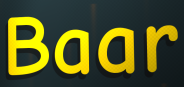
Baar